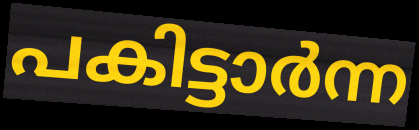
പകിട്ടാർന്ന